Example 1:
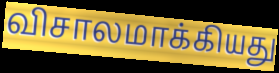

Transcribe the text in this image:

விசாலமாக்கியது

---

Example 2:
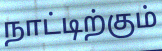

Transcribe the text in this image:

நாட்டிற்கும்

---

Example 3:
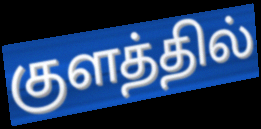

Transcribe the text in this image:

குளத்தில்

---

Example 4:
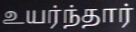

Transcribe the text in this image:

உயர்ந்தார்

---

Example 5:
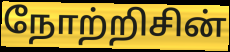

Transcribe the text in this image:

நோற்றிசின்